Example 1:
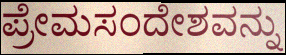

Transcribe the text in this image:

ಪ್ರೇಮಸಂದೇಶವನ್ನು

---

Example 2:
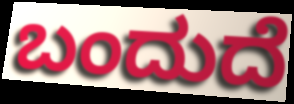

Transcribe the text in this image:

ಬಂದುದೆ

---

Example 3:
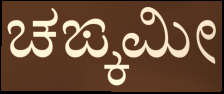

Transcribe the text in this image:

ಚಙ್ಕಮೀ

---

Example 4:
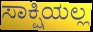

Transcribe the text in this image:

ಸಾಕ್ಷಿಯಲ್ಲ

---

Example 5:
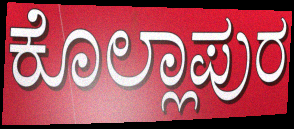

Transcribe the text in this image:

ಕೊಲ್ಲಾಪುರ